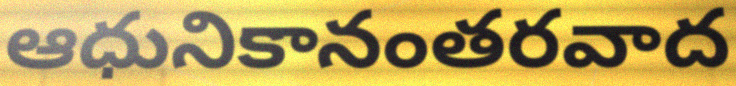
ఆధునికానంతరవాద